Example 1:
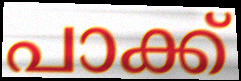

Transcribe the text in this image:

പാക്ക്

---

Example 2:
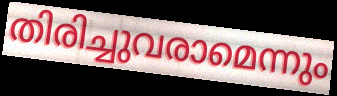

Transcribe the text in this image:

തിരിച്ചുവരാമെന്നും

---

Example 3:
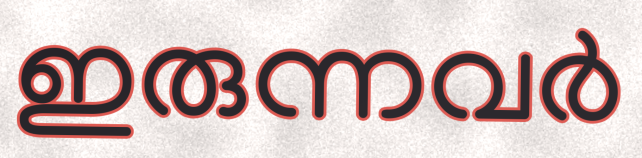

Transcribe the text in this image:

ഇരുന്നവർ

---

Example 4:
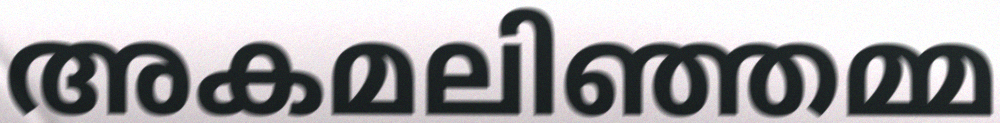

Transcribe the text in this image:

അകമലിഞ്ഞമ്മ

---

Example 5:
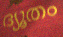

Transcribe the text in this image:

ദ്യൂതം